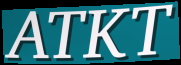
ATKT